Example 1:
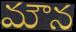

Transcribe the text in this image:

మౌన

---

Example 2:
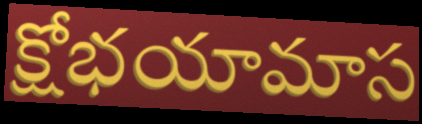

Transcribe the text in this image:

క్షోభయామాస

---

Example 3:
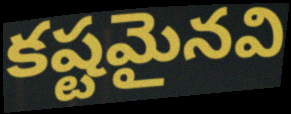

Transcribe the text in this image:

కష్టమైనవి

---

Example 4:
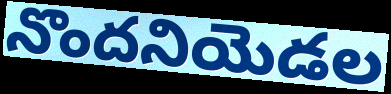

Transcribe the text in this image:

నొందనియెడల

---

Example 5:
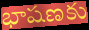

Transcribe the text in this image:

భాషణకు